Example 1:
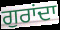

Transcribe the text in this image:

ਗੁਰਾਂਦਾ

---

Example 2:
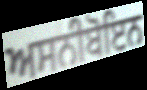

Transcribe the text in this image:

ਅਸਨੀਬੋਇਨ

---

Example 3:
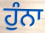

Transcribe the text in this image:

ਹੁੰਨਾ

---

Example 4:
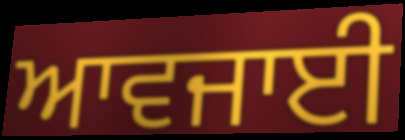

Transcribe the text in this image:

ਆਵਜਾਈ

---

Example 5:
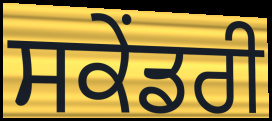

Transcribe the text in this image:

ਸਕੇਂਡਰੀ